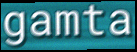
gamta